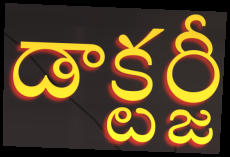
డాక్టర్జీ